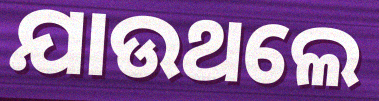
ଯାଉଥଲେ